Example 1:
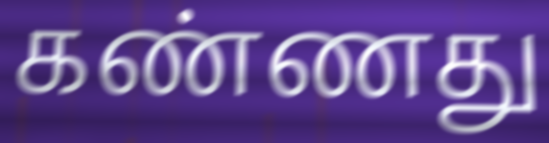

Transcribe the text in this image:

கண்ணது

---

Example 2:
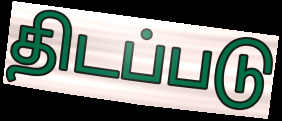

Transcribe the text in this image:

திடப்படு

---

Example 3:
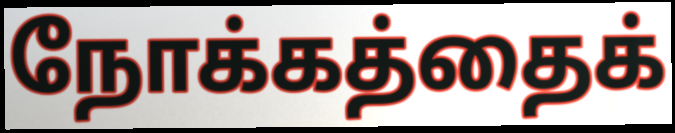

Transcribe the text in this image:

நோக்கத்தைக்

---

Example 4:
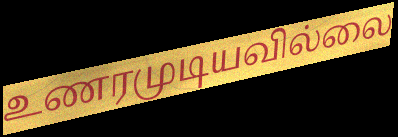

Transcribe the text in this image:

உணரமுடியவில்லை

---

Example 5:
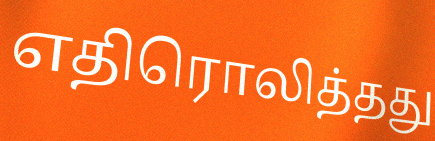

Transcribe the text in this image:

எதிரொலித்தது